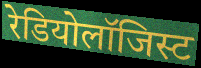
रेडियोलॉजिस्ट